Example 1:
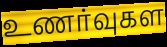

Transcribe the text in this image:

உணர்வுகள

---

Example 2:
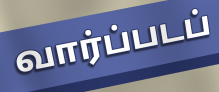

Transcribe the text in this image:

வார்ப்படப்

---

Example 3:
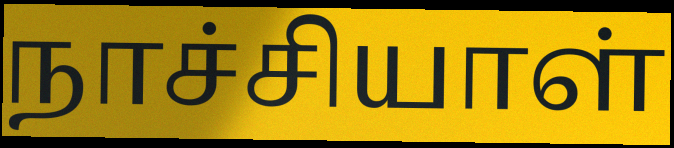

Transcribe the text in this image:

நாச்சியாள்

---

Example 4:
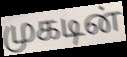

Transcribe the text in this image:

முகடின்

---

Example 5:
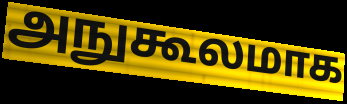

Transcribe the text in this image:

அநுகூலமாக